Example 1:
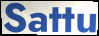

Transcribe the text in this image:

Sattu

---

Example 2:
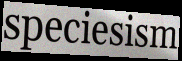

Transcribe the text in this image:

speciesism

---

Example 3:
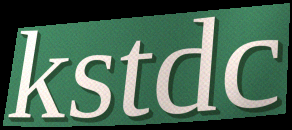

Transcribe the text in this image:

kstdc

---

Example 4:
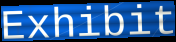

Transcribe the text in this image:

Exhibit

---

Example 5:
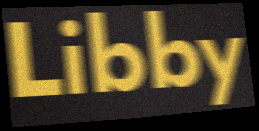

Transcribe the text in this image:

Libby